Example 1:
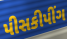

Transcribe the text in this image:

પીસકીપીંગ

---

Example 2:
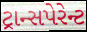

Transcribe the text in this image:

ટ્રાન્સપેરેન્ટ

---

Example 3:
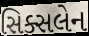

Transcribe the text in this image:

સિક્સલેન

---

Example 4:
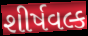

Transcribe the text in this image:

શીર્ષવલ્ક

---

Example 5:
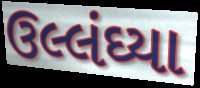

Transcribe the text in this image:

ઉલ્લંઘ્યા